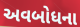
અવબોધના